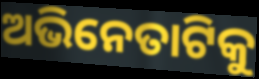
ଅଭିନେତାଟିକୁ